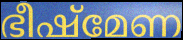
ഭീഷ്മേണ